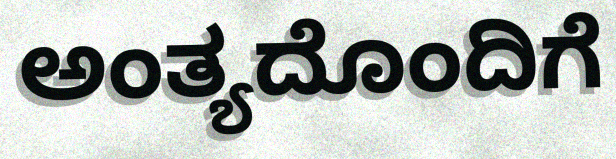
ಅಂತ್ಯದೊಂದಿಗೆ